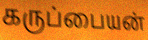
கருப்பையன்